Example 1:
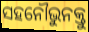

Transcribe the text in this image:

ସହନୌଭୁନକ୍ତୁ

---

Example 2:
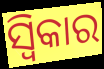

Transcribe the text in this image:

ସ୍ୱିକାର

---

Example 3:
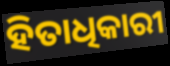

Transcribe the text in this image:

ହିତାଧିକାରୀ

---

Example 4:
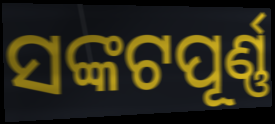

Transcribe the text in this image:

ସଙ୍କଟପୂର୍ଣ୍ଣ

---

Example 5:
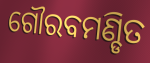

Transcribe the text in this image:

ଗୌରବମଣ୍ଡିତ